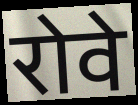
रोवे